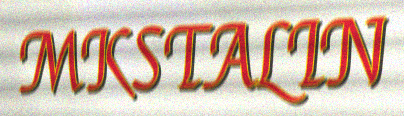
MKSTALIN